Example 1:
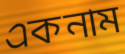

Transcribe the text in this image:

একনাম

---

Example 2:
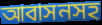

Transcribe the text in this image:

আবাসনসহ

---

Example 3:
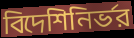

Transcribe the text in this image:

বিদেশিনির্ভর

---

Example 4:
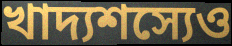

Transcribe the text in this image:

খাদ্যশস্যেও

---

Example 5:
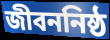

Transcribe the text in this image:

জীবননিষ্ঠ